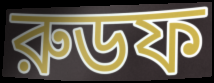
রুডফ